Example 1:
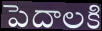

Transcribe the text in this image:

పెదాలకి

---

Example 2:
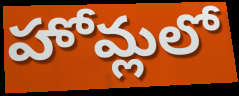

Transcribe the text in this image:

హోమ్లలో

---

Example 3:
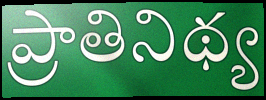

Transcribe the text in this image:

ప్రాతినిథ్య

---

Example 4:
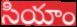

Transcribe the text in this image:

సియాం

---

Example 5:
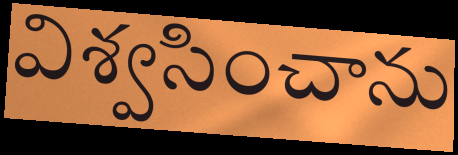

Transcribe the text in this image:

విశ్వసించాను